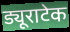
ड्यूराटेक